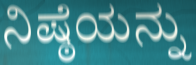
ನಿಷ್ಠೆಯನ್ನು